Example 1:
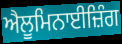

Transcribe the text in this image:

ਐਲੂਮਿਨਾਈਜ਼ਿੰਗ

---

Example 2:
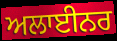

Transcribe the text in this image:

ਅਲਾਈਨਰ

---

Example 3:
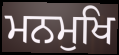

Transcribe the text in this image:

ਮਨਮੁਖਿ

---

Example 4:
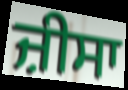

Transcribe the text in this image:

ਜ਼ੀਸਾ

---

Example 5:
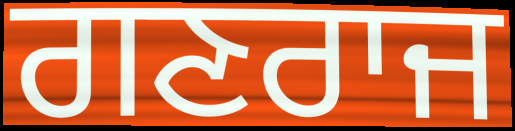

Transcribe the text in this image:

ਗਣਰਾਜ